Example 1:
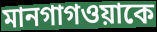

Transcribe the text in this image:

মানগাগওয়াকে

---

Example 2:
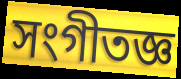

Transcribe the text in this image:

সংগীতজ্ঞ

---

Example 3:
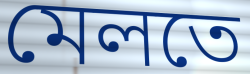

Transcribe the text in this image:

মেলতে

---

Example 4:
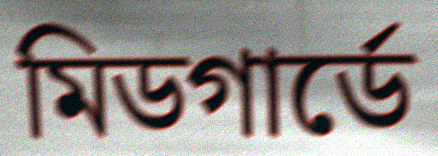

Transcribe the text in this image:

মিডগার্ডে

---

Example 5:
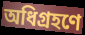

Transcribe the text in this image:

অধিগ্রহণে